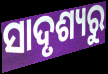
ସାଦୃଶ୍ୟରୁ